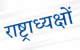
राष्ट्राध्यक्षों